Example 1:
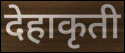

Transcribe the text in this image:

देहाकृती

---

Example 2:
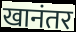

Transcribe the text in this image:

खानंतर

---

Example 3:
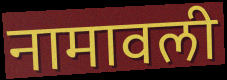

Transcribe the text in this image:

नामावली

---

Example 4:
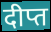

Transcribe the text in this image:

दीप्त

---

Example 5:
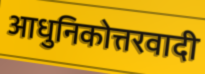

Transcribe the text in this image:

आधुनिकोत्तरवादी